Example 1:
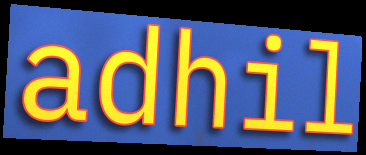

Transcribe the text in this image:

adhil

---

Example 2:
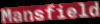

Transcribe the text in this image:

Mansfield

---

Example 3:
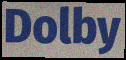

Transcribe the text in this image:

Dolby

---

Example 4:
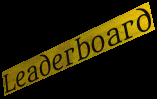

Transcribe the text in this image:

Leaderboard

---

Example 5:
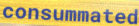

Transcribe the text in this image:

consummated